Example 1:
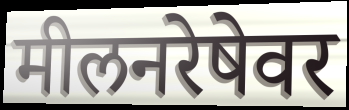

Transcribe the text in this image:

मीलनरेषेवर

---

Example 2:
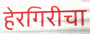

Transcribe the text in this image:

हेरगिरीचा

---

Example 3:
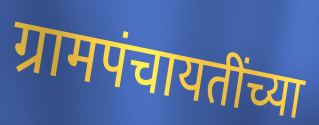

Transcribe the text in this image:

ग्रामपंचायतींच्या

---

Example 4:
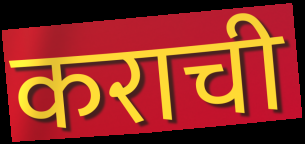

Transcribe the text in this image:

कराची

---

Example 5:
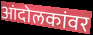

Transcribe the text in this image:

आंदोलकांवर